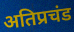
अतिप्रचंड